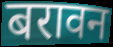
बरावन